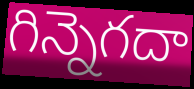
గిన్నెగదా